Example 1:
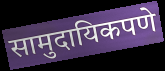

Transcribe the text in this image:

सामुदायिकपणे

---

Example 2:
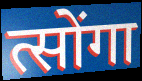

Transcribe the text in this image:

त्सोंगा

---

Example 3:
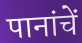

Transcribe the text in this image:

पानांचें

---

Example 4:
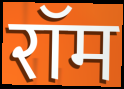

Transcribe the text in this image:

रॉम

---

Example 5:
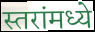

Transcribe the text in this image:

स्तरांमध्ये